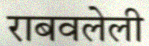
राबवलेली